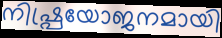
നിഷ്പ്രയോജനമായി